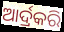
ଆର୍ଦ୍ରକରି